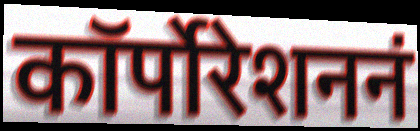
कॉर्पोरेशननं